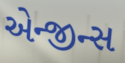
એન્જીન્સ